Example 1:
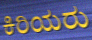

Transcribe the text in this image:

ಕಿರಿಯರು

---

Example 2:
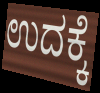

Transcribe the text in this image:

ಉದಕ್ಕೆ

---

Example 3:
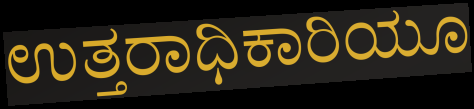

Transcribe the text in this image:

ಉತ್ತರಾಧಿಕಾರಿಯೂ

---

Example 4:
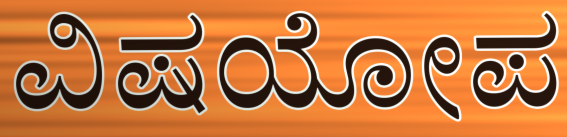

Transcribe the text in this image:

ವಿಷಯೋಪ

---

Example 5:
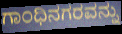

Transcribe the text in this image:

ಗಾಂಧಿನಗರವನ್ನು